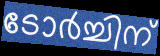
ടോർച്ചിന്